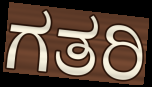
ಗತರಿ